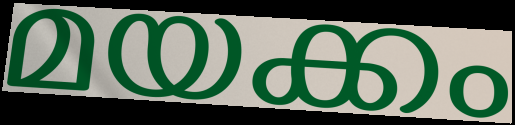
മയക്കം